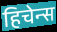
हिचेन्स